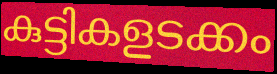
കുട്ടികളടക്കം